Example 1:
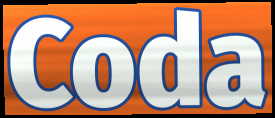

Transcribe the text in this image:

Coda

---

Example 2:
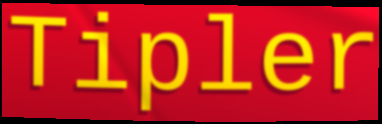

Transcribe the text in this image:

Tipler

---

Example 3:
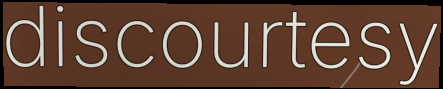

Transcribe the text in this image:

discourtesy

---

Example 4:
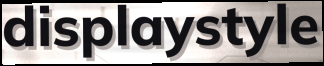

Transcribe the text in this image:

displaystyle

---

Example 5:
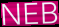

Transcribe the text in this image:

NEB